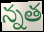
న్నత